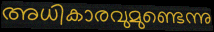
അധികാരവുമുണ്ടെന്നു